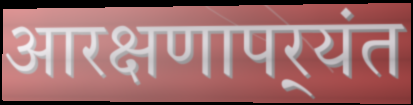
आरक्षणापर्यंत